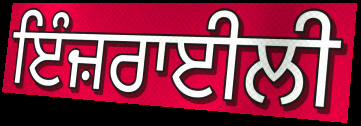
ਇੰਜ਼ਰਾਈਲੀ